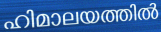
ഹിമാലയത്തിൽ